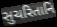
સુચરિતાનિ